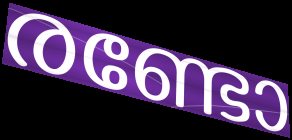
രണ്ടോ